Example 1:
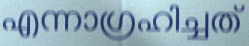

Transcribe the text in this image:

എന്നാഗ്രഹിച്ചത്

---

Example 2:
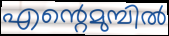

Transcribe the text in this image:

എന്റെമുമ്പിൽ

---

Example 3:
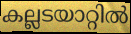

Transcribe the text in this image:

കല്ലടയാറ്റിൽ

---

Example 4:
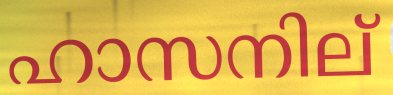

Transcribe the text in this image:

ഹാസനില്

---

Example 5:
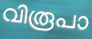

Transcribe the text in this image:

വിരൂപാ